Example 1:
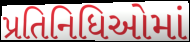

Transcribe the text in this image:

પ્રતિનિધિઓમાં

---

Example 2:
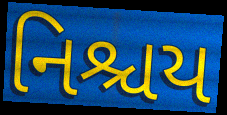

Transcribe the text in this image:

નિશ્ચય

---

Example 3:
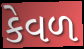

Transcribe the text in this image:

કેવળ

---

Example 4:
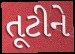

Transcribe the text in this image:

તૂટીને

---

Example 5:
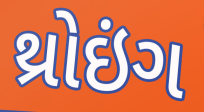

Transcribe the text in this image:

થ્રોઇંગ